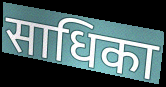
साधिका